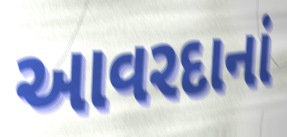
આવરદાનાં